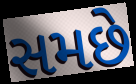
સમછે